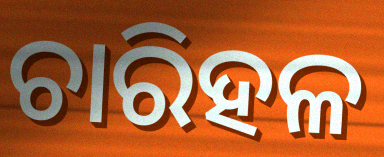
ଚାରିହଳ